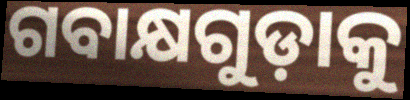
ଗବାକ୍ଷଗୁଡ଼ାକୁ